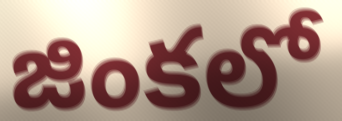
జింకలో